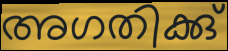
അഗതിക്കു്